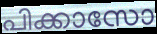
പിക്കാസോ